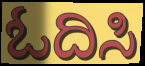
ಓದಿಸಿ